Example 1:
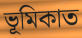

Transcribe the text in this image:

ভূমিকাত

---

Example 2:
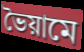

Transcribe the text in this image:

ভৈয়ামে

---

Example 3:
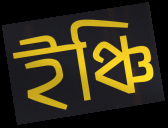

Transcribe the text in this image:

ইঞ্চি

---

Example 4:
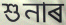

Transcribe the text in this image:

শুনাৰ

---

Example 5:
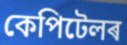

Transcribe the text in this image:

কেপিটেলৰ